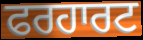
ਫਰਹਾਰਟ